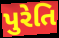
પુરેતિ